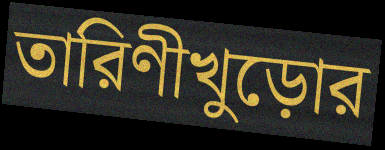
তারিণীখুড়োর